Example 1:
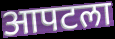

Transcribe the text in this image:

आपटला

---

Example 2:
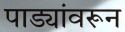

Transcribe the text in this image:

पाड्यांवरून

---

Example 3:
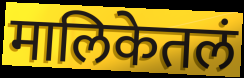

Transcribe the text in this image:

मालिकेतलं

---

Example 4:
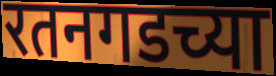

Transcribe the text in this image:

रतनगडच्या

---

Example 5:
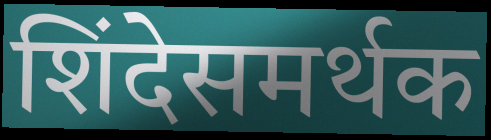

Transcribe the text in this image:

शिंदेसमर्थक